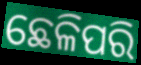
ଛେଳିପରି